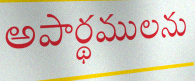
అపార్థములను